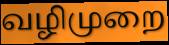
வழிமுறை